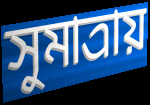
সুমাত্রায়